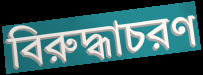
বিরুদ্ধাচরণ